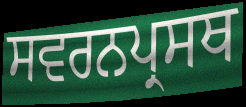
ਸਵਰਨਪ੍ਰਸਥ